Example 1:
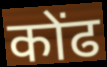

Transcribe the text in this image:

कोंढ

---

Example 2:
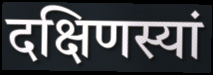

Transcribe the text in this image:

दक्षिणस्यां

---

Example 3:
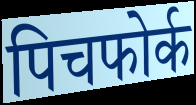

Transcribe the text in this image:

पिचफोर्क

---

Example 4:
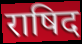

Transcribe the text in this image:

राषिद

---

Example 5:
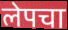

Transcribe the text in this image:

लेपचा